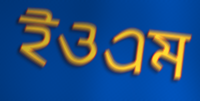
ইওএম